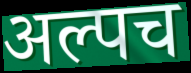
अल्पच